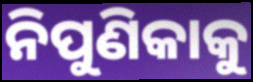
ନିପୁଣିକାକୁ